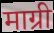
माग्री